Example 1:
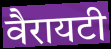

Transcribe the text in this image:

वैरायटी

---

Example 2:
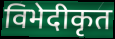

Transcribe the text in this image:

विभेदीकृत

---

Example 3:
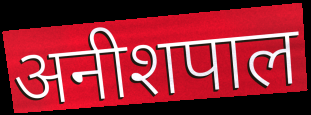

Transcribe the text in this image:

अनीशपाल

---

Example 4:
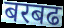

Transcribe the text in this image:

बरबढ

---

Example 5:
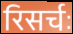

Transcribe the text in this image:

रिसर्चः